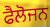
ਫੈਲੋਜਨ